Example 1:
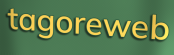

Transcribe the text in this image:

tagoreweb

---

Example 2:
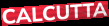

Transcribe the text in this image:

CALCUTTA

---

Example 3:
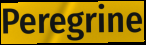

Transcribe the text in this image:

Peregrine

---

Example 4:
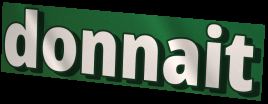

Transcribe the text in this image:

donnait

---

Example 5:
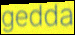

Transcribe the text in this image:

gedda